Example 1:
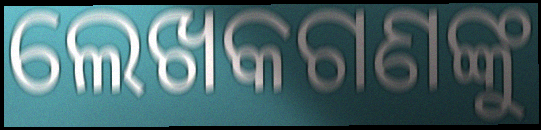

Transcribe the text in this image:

ଲେଖକଗଣଙ୍କୁ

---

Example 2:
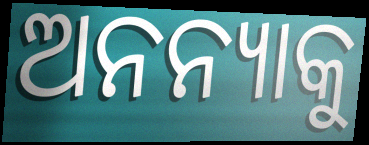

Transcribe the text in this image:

ଅନନ୍ୟାକୁ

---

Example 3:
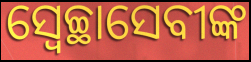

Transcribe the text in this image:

ସ୍ୱେଚ୍ଛାସେବୀଙ୍କ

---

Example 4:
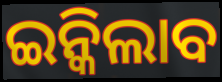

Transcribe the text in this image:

ଇନ୍କିଲାବ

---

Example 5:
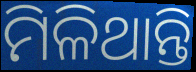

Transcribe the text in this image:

ମିଳିଥାନ୍ତି